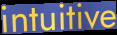
intuitive